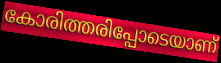
കോരിത്തരിപ്പോടെയാണ്